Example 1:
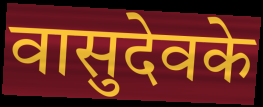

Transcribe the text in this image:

वासुदेवके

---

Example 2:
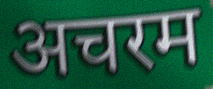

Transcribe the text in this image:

अचरम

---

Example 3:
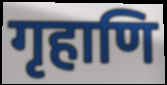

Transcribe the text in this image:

गृहाणि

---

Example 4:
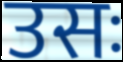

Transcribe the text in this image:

उसः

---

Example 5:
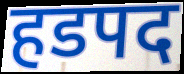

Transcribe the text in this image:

हडपद